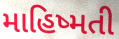
માહિષ્મતી